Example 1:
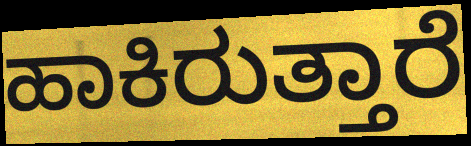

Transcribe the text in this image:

ಹಾಕಿರುತ್ತಾರೆ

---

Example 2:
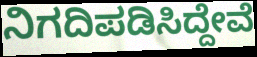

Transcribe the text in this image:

ನಿಗದಿಪಡಿಸಿದ್ದೇವೆ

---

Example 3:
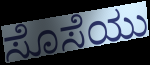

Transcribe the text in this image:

ಸೊಸೆಯು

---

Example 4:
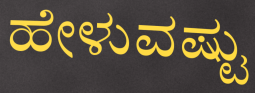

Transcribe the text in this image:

ಹೇಳುವಷ್ಟು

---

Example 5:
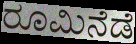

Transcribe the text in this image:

ರೂಮಿನೆಡೆ